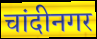
चांदीनगर